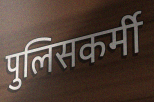
पुलिसकर्मी